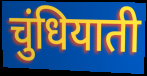
चुंधियाती